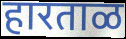
हारताळ